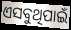
ଏସବୁଥିପାଇଁ